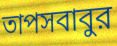
তাপসবাবুর